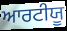
ਆਰਟੀਯੂ